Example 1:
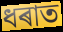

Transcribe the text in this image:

ধৰাত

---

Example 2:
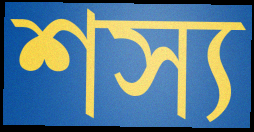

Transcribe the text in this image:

শস্য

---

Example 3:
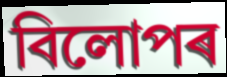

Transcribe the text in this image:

বিলোপৰ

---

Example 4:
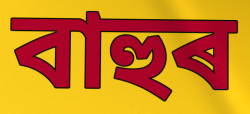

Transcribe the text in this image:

বাহুৰ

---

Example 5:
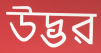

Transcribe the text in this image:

উদ্ভৱ